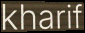
kharif